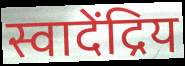
स्वादेंद्रिय